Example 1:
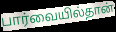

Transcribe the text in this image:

பார்வையில்தான்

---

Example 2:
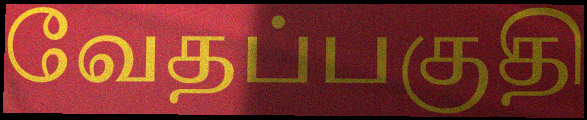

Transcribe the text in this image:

வேதப்பகுதி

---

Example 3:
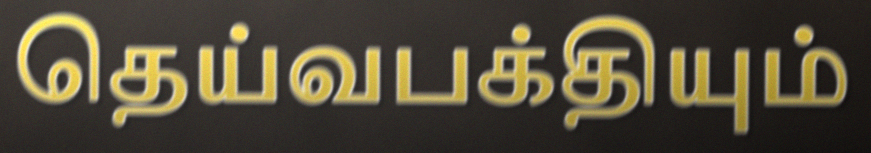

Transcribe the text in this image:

தெய்வபக்தியும்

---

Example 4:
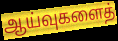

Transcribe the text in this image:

ஆய்வுகளைத்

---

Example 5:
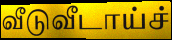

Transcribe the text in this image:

வீடுவீடாய்ச்